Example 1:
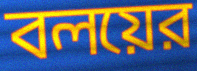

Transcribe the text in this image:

বলয়ের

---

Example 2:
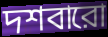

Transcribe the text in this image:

দশবারো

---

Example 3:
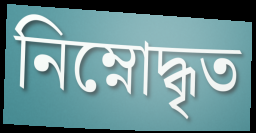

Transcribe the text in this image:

নিম্নোদ্ধৃত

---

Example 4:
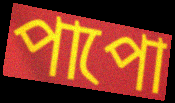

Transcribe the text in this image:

পাপো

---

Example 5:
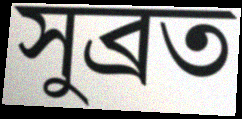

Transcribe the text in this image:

সুব্রত